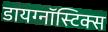
डायग्नॉस्टिक्स